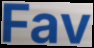
Fav